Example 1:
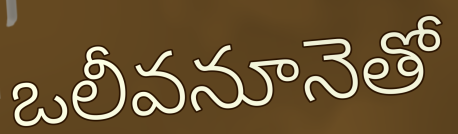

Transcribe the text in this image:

ఒలీవనూనెతో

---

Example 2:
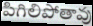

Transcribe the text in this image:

పిగిలిపోతావు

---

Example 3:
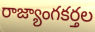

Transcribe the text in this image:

రాజ్యాంగకర్తల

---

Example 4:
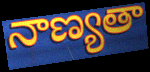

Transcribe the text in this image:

నాణ్యతా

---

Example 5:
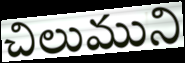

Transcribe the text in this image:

చిలుముని